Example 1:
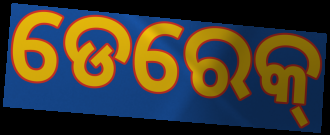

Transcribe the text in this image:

ଡେରେକ୍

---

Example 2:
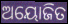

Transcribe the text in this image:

ଅୟୋଜିତ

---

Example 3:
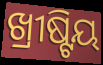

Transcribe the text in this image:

ଖ୍ରୀଷ୍ଟିୟ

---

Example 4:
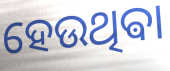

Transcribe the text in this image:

ହେଉଥିଵା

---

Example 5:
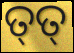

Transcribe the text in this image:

ତ୍‌ତ୍